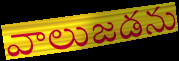
వాలుజడను